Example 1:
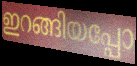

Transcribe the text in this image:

ഇറങ്ങിയപ്പോ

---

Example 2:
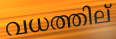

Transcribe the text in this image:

വധത്തില്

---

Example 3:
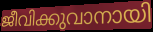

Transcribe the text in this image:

ജീവിക്കുവാനായി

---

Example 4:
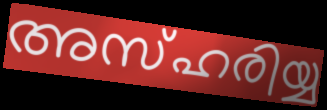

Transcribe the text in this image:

അസ്ഹരിയ്യ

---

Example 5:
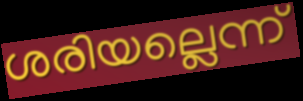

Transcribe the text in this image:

ശരിയല്ലെന്ന്